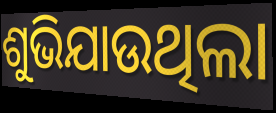
ଶୁଭିଯାଉଥିଲା